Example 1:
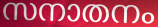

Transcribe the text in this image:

സനാതനം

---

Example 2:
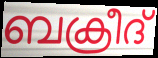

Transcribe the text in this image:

ബക്രീദ്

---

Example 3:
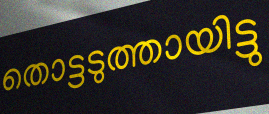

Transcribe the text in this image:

തൊട്ടടുത്തായിട്ടു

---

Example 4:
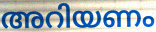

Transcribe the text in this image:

അറിയണം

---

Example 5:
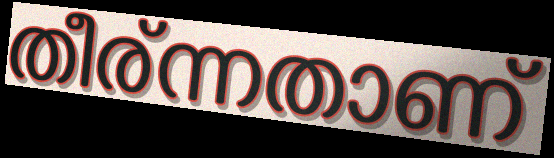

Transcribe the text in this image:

തീര്ന്നതാണ്